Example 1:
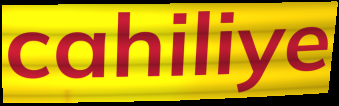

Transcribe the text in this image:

cahiliye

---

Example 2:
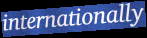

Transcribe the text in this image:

internationally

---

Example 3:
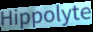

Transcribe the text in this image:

Hippolyte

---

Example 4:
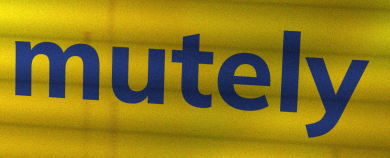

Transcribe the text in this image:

mutely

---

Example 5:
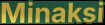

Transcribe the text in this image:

Minaksi